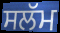
ਸਲੱਮ